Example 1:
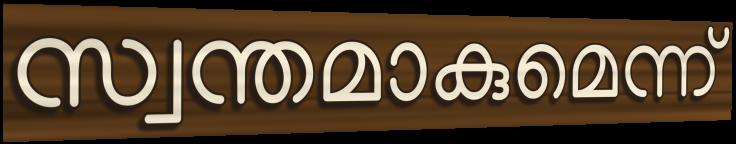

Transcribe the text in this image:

സ്വന്തമാകുമെന്ന്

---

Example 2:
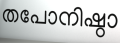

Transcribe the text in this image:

തപോനിഷ്ഠാ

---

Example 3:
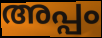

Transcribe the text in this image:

അപ്പം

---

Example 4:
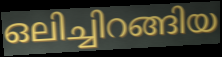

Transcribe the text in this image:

ഒലിച്ചിറങ്ങിയ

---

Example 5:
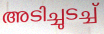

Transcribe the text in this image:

അടിച്ചുടച്ച്